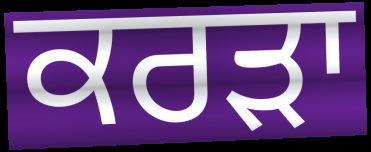
ਕਰੜਾ